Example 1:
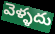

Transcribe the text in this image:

వెళ్ళదు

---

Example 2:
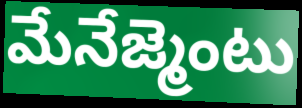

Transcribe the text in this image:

మేనేజ్మెంటు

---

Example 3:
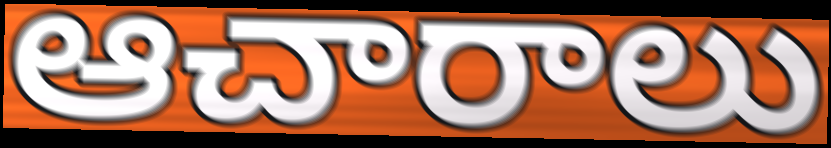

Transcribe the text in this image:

ఆచారాలు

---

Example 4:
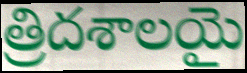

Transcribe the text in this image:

త్రిదశాలయై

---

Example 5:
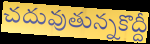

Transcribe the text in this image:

చదువుతున్నకొద్దీ